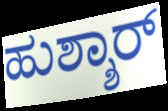
ಹುಶ್ಶಾರ್